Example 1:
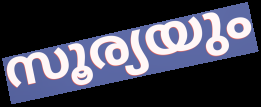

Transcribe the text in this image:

സൂര്യയും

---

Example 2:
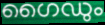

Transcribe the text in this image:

ഗൈഡും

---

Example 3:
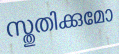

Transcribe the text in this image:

സ്തുതിക്കുമോ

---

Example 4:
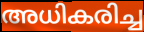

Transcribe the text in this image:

അധികരിച്ച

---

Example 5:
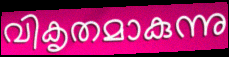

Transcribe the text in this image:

വികൃതമാകുന്നു